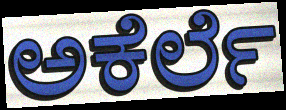
ಅಕೆರ್ಲೆ